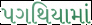
પગથિયામાં